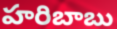
హరిబాబు